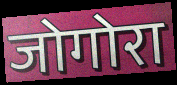
जोगोरा